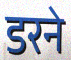
डरने